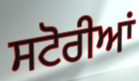
ਸਟੋਰੀਆਂ